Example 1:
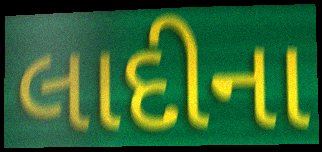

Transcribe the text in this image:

લાદીના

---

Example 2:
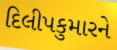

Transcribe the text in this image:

દિલીપકુમારને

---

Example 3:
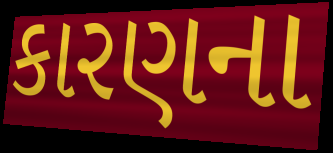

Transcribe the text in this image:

કારણના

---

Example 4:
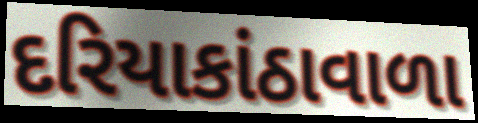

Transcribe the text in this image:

દરિયાકાંઠાવાળા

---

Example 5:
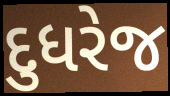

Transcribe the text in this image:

દુધરેજ